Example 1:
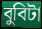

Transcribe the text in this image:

বুবিটা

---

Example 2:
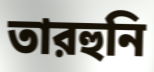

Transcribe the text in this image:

তারহুনি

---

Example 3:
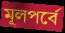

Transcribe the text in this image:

মূলপর্বে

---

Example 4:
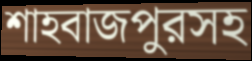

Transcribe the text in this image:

শাহবাজপুরসহ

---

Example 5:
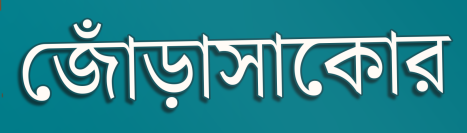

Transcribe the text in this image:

জোঁড়াসাকোর